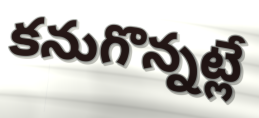
కనుగొన్నట్లే